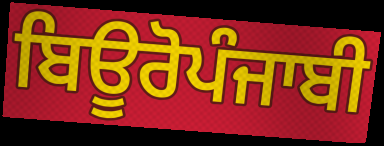
ਬਿਊਰੋਪੰਜਾਬੀ